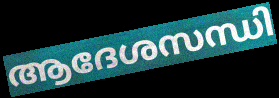
ആദേശസന്ധി